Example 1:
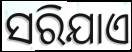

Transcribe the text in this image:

ସରିଯାଏ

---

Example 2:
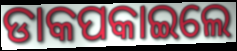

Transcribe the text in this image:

ଡାକପକାଇଲେ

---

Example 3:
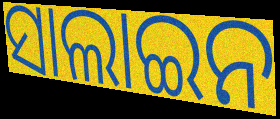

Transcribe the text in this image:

ସାଲାଇନ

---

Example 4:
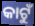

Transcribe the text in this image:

କାଟୁଁ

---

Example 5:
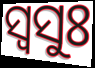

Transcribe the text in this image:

ସ୍ଵସୁଃ